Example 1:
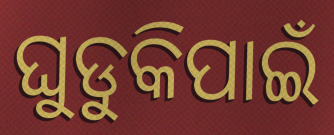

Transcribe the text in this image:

ଘୁଡୁକିପାଇଁ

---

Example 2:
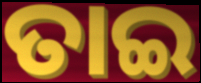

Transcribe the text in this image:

ତାଇ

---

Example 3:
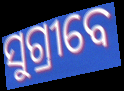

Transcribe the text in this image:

ସୁଗ୍ରୀବେ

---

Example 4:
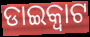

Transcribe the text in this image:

ଡାଇକ୍ଵାଟ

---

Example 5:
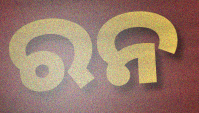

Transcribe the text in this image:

ରନ